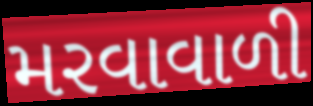
મરવાવાળી